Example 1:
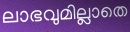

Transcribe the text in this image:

ലാഭവുമില്ലാതെ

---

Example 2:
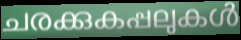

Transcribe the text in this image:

ചരക്കുകപ്പലുകൾ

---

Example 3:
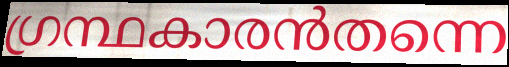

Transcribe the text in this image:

ഗ്രന്ഥകാരൻതന്നെ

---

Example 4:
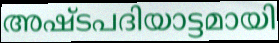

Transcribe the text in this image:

അഷ്ടപദിയാട്ടമായി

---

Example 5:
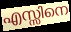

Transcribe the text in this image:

എസ്സിനെ